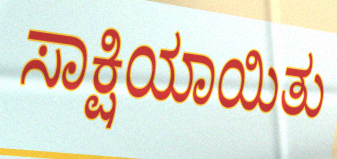
ಸಾಕ್ಷಿಯಾಯಿತು